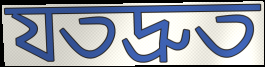
যতদ্রুত